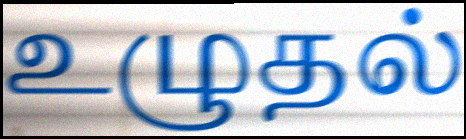
உழுதல்